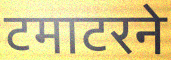
टमाटरने